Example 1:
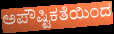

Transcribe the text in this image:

ಅಪೌಷ್ಟಿಕತೆಯಿಂದ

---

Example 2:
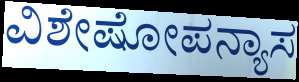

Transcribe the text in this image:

ವಿಶೇಷೋಪನ್ಯಾಸ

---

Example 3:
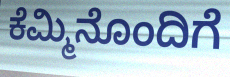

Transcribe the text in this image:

ಕೆಮ್ಮಿನೊಂದಿಗೆ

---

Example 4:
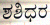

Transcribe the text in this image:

ಶಶಿಧರ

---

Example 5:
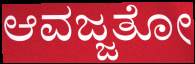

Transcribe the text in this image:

ಆವಜ್ಜತೋ